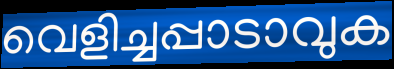
വെളിച്ചപ്പാടാവുക